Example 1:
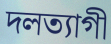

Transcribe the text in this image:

দলত্যাগী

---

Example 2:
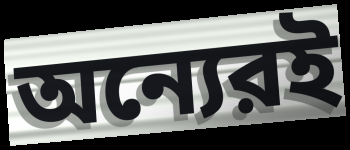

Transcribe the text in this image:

অন্যেরই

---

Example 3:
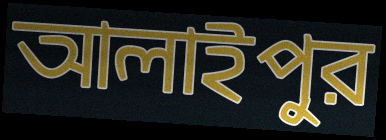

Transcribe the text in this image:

আলাইপুর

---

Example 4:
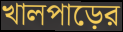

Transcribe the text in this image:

খালপাড়ের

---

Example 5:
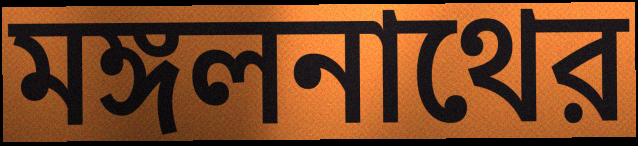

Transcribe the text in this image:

মঙ্গলনাথের